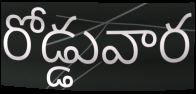
రోడ్డువార